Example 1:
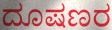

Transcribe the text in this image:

ದೂಷಣರ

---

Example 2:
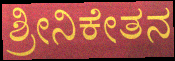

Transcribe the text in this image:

ಶ್ರೀನಿಕೇತನ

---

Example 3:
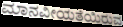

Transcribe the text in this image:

ಮಾನವೀಯತೆಯಿರುವ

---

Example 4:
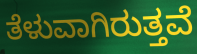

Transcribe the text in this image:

ತೆಳುವಾಗಿರುತ್ತವೆ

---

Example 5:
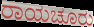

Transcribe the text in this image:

ರಾಯಚೂರು